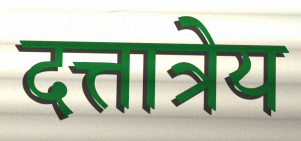
दत्तात्रेय